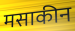
मसाकीन